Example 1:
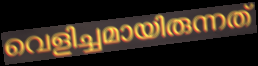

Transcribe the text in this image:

വെളിച്ചമായിരുന്നത്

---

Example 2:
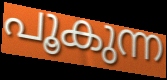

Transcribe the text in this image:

പൂകുന്ന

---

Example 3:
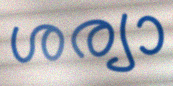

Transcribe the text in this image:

ശര്യാ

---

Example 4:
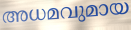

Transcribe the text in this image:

അധമവുമായ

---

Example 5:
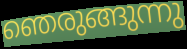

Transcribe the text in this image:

ഞെരുങ്ങുന്നു